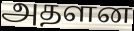
அதளன